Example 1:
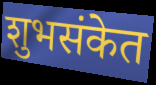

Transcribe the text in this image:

शुभसंकेत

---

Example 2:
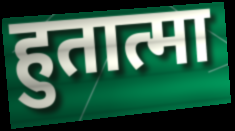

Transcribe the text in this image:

हुतात्मा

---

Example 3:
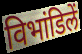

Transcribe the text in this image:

विभांडिलें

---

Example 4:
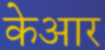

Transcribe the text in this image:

केआर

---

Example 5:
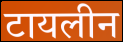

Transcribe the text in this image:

टायलीन